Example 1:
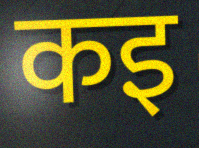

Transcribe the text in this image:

कइ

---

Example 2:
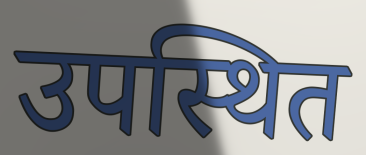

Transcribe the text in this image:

उपस्थित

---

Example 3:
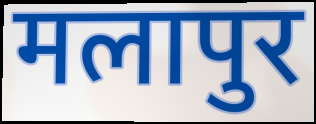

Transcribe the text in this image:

मलापुर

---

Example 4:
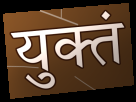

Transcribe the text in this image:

युक्तं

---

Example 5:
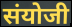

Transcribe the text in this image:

संयोजी